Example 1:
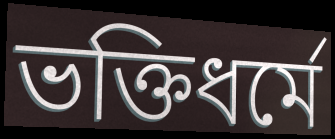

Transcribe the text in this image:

ভক্তিধর্মে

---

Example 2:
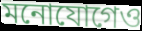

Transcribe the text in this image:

মনোযোগেও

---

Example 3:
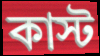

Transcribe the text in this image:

কাস্ট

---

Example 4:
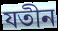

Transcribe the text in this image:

যতীন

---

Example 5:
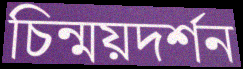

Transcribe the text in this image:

চিন্ময়দর্শন